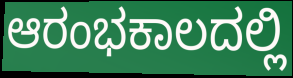
ಆರಂಭಕಾಲದಲ್ಲಿ